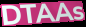
DTAAs